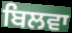
ਬਿਲਵਾ